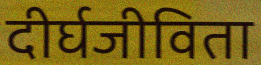
दीर्घजीविता